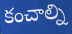
కంచాల్ని